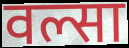
वल्सा